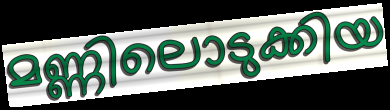
മണ്ണിലൊടുക്കിയ